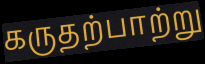
கருதற்பாற்று